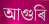
আগুৰি